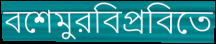
বশেমুরবিপ্রবিতে